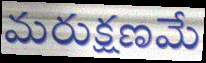
మరుక్షణమే